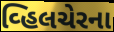
વ્હિલચેરના